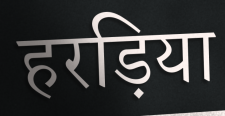
हरड़िया